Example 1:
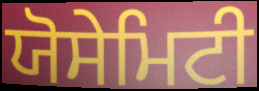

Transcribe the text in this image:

ਯੋਸੇਮਿਟੀ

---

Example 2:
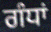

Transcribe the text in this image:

ਗੰਧਾਂ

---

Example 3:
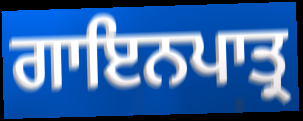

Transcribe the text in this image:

ਗਾਇਨਪਾਤ੍ਰ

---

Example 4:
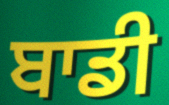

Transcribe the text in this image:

ਬਾਡੀ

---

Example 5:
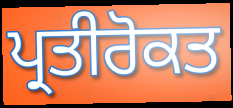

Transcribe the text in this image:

ਪ੍ਰਤੀਰੋਕਤ